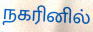
நகரினில்